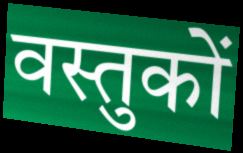
वस्तुकों